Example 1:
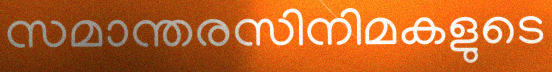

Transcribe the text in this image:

സമാന്തരസിനിമകളുടെ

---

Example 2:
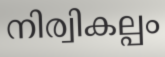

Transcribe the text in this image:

നിര്വികല്പം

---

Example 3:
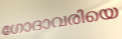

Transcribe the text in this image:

ഗോദാവരിയെ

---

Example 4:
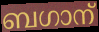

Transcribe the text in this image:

ബഗാന്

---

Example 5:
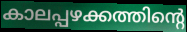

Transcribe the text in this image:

കാലപ്പഴക്കത്തിന്റെ